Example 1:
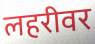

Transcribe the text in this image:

लहरीवर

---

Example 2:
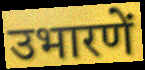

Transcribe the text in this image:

उभारणें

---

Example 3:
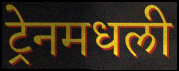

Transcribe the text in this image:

ट्रेनमधली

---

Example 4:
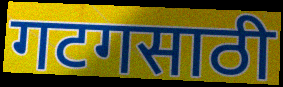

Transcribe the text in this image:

गटगसाठी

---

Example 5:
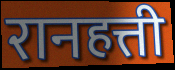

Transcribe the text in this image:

रानहत्ती